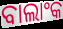
ବାଲାଂକ